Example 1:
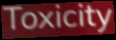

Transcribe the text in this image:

Toxicity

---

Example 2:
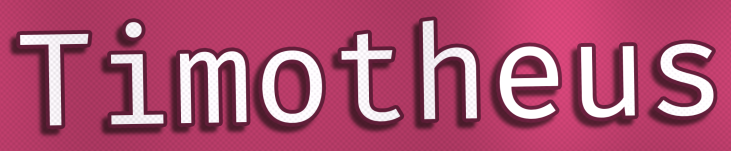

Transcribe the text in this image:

Timotheus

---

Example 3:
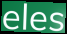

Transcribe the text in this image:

eles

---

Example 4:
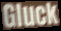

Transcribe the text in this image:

Gluck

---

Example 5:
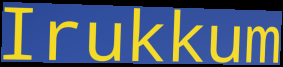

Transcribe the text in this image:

Irukkum